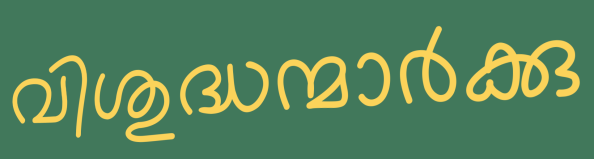
വിശുദ്ധന്മാർക്കു